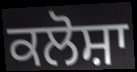
ਕਲੋਸ਼ਾ